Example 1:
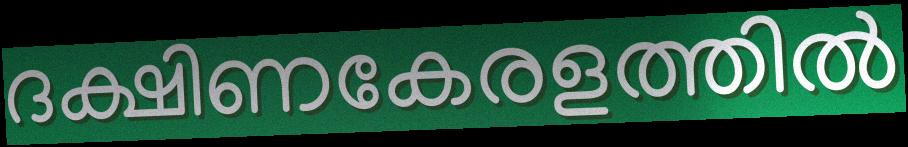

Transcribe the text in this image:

ദക്ഷിണകേരളത്തിൽ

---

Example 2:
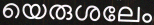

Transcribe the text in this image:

യെരുശലേം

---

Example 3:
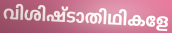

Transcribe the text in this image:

വിശിഷ്ടാതിഥികളേ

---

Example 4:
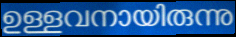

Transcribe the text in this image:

ഉള്ളവനായിരുന്നു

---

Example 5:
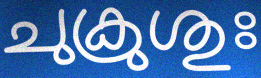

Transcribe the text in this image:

ചുക്രുശുഃ